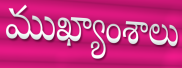
ముఖ్యాంశాలు